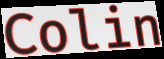
Colin